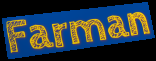
Farman